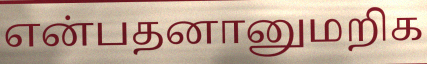
என்பதனானுமறிக